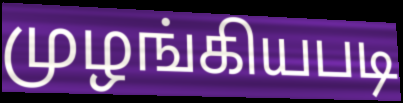
முழங்கியபடி